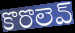
కొరొలెవ్